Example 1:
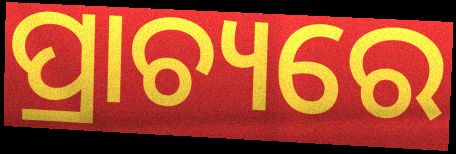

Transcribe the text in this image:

ପ୍ରାଚ୍ୟରେ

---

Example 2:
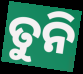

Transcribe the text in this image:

ତୁନି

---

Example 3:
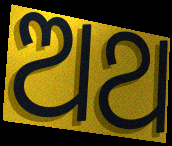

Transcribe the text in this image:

ଅଥ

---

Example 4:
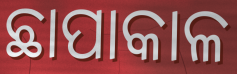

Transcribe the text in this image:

ଛାପାକାଳ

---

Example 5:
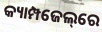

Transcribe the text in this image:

କ୍ୟାମ୍ପଜେଲ୍‌ରେ